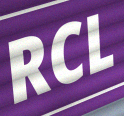
RCL